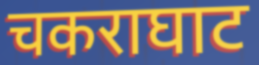
चकराघाट